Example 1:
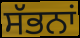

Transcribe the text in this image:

ਸੱਭਨਾਂ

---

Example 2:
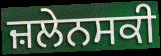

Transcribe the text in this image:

ਜ਼ਲੇਨਸਕੀ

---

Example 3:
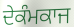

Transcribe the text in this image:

ਦੇਕੰਮਕਾਜ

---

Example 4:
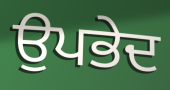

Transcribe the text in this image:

ਉਪਭੇਦ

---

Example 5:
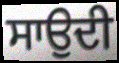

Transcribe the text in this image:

ਸਾਉਦੀ